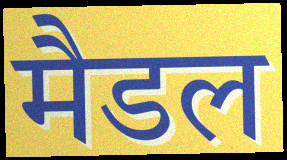
मैडल